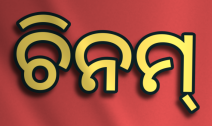
ଚିନମ୍